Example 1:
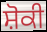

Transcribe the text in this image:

ਸ਼ੋਕੀ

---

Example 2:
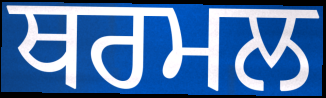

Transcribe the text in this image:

ਥਰਮਲ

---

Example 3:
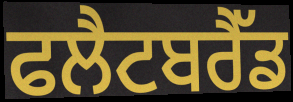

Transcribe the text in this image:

ਫਲੈਟਬਰੈੱਡ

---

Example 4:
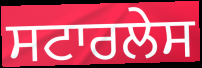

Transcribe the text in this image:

ਸਟਾਰਲੇਸ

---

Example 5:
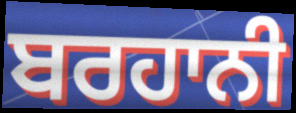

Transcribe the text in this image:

ਬਰਹਾਨੀ